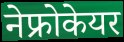
नेफ्रोकेयर